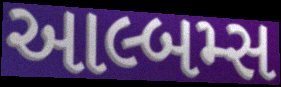
આલ્બમ્સ